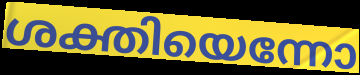
ശക്തിയെന്നോ